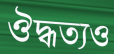
ঔদ্ধত্যও